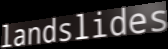
landslides